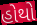
હોથો